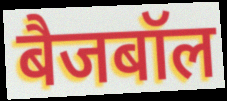
बैजबॉल